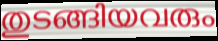
തുടങ്ങിയവരും